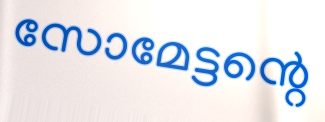
സോമേട്ടന്റെ